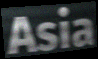
Asia